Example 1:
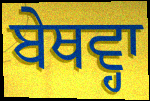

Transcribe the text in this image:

ਬੇਥਵ੍ਹਾ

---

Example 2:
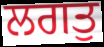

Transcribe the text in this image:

ਲਗਤੁ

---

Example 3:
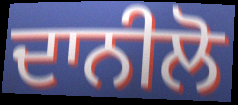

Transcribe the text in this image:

ਦਾਨੀਲੋ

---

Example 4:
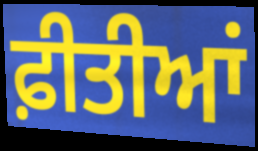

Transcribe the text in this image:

ਫ਼ੀਤੀਆਂ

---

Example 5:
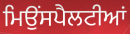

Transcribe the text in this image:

ਮਿਉਂਸਪੈਲਟੀਆਂ